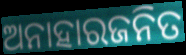
ଅନାହାରଜନିତ